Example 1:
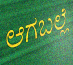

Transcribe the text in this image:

ಆಗಬಲ್ಲೆ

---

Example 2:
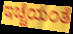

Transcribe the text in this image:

ಇಚ್ಚೆಯಂತೆ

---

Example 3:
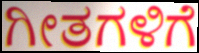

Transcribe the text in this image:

ಗೀತಗಳಿಗೆ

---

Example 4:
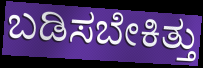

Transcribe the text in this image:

ಬಡಿಸಬೇಕಿತ್ತು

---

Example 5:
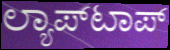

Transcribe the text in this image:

ಲ್ಯಾಪ್‍ಟಾಪ್